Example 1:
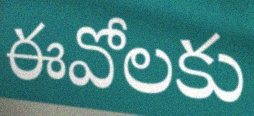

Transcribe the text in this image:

ఈవోలకు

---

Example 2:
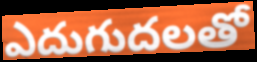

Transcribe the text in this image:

ఎదుగుదలతో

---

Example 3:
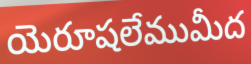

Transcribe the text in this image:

యెరూషలేముమీద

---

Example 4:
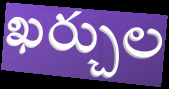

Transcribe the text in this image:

ఖర్చుల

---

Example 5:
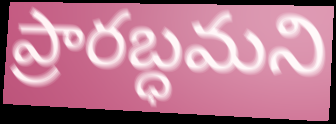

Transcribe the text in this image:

ప్రారబ్ధమని